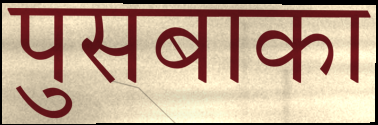
पुसबाका